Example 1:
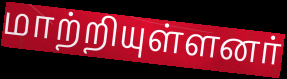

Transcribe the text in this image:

மாற்றியுள்ளனர்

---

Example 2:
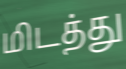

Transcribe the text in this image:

மிடத்து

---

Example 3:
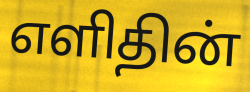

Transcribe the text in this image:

எளிதின்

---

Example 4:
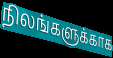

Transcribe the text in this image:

நிலங்களுக்காக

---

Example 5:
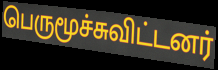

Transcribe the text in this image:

பெருமூச்சுவிட்டனர்